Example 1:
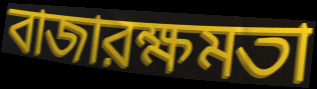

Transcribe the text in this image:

বাজারক্ষমতা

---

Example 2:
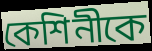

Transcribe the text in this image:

কেশিনীকে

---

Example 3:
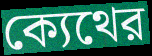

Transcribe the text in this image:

ক্যেথের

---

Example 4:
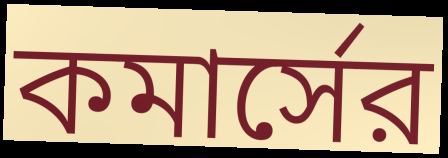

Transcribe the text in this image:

কমার্সের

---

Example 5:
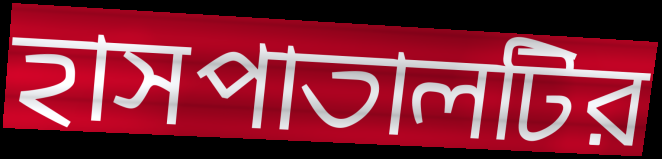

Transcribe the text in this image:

হাসপাতালটির